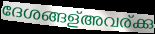
ദേശങ്ങള്അവര്ക്കു